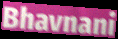
Bhavnani